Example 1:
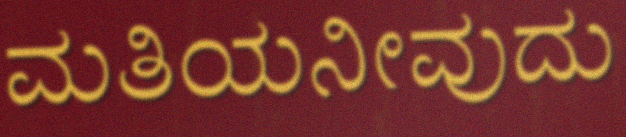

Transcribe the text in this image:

ಮತಿಯನೀವುದು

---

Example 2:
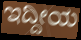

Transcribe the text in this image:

ಇದ್ದೀಯ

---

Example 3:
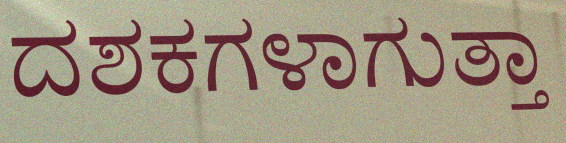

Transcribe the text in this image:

ದಶಕಗಳಾಗುತ್ತಾ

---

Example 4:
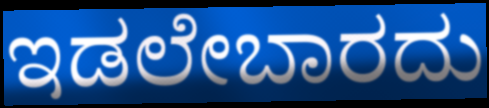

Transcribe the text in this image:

ಇಡಲೇಬಾರದು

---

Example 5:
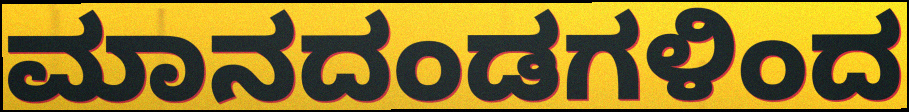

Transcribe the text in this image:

ಮಾನದಂಡಗಳಿಂದ